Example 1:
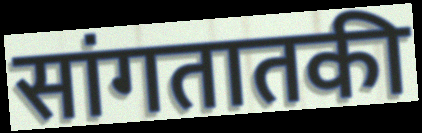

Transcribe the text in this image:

सांगतातकी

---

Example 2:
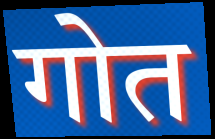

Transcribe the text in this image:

गोत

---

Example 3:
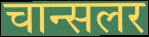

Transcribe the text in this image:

चान्सलर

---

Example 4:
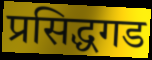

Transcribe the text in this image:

प्रसिद्धगड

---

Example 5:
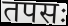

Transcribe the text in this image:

तपसः